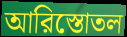
আরিস্তোতল